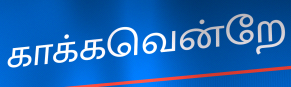
காக்கவென்றே